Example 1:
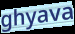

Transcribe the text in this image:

ghyava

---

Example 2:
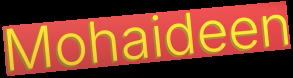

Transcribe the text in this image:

Mohaideen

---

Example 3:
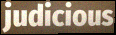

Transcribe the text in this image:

judicious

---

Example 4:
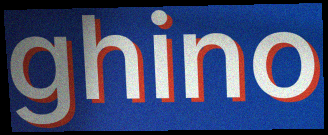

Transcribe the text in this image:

ghino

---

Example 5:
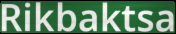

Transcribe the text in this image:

Rikbaktsa